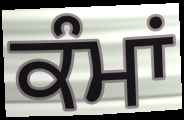
ਕੰਮਾਂ